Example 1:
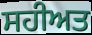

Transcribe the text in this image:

ਸਹੀਅਤ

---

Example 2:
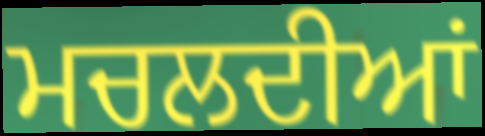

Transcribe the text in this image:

ਮਚਲਦੀਆਂ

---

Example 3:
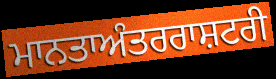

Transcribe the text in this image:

ਮਾਨਤਾਅੰਤਰਰਾਸ਼ਟਰੀ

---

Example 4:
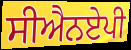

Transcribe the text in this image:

ਸੀਐਨਏਪੀ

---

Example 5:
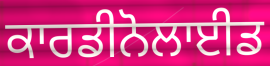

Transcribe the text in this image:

ਕਾਰਡੀਨੋਲਾਈਡ